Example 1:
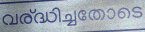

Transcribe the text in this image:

വര്ദ്ധിച്ചതോടെ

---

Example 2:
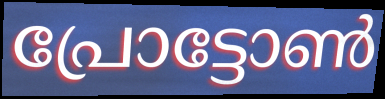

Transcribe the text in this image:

പ്രോട്ടോൺ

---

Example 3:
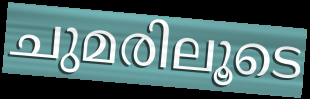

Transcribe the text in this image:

ചുമരിലൂടെ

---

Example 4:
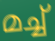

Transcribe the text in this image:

മച്ച്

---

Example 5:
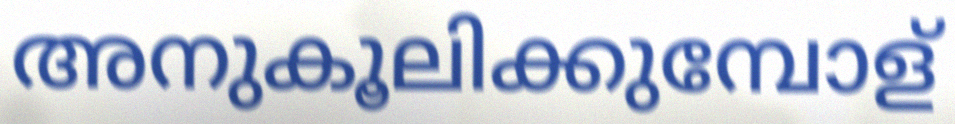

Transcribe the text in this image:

അനുകൂലിക്കുമ്പോള്